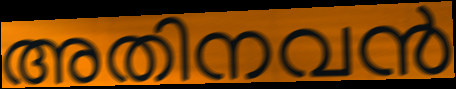
അതിനവൻ